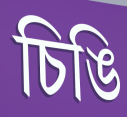
চিঙি